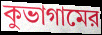
কুভাগামের